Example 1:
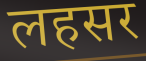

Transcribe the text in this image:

लहसर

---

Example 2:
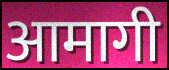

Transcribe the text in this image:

आमागी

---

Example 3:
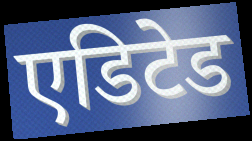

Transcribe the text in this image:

एडिटेड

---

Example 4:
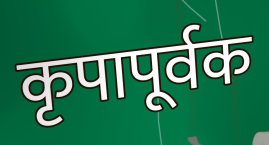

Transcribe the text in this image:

कृपापूर्वक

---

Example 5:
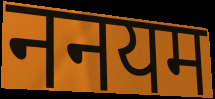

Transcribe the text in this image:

ननयम